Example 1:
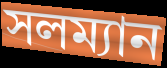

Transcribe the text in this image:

সলম্যান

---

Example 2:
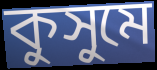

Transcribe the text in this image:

কুসুমে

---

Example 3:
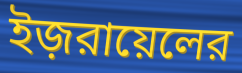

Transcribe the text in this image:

ইজ়রায়েলের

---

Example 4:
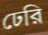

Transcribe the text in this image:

ঢেরি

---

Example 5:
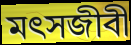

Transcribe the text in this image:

মৎসজীবী